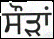
ਸੌੜਾਂ